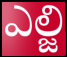
ఎల్జి